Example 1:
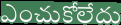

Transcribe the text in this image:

ఎంచుకోలేదు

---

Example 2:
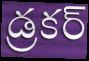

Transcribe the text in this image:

డ్రకర్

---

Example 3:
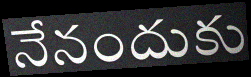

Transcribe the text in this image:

నేనందుకు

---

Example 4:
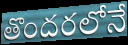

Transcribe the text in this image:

తొందరలోనే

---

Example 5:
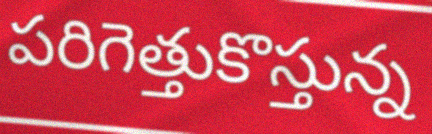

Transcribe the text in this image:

పరిగెత్తుకొస్తున్న